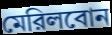
মেরিলবোন